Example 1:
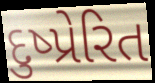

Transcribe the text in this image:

દુષ્પ્રેરિત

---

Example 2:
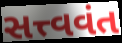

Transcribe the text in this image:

સત્ત્વવંત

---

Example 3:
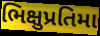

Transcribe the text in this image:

ભિક્ષુપ્રતિમા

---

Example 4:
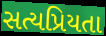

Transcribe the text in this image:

સત્યપ્રિયતા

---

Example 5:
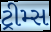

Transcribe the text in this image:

ટ્રીમ્સ